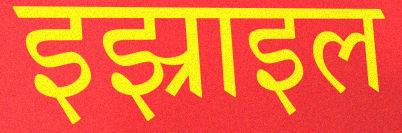
इझ्राइल